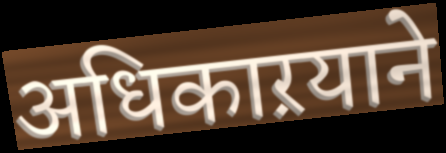
अधिकाऱयाने